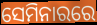
ସେମିନାରରେ